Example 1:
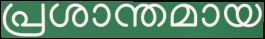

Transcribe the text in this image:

പ്രശാന്തമായ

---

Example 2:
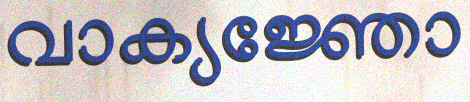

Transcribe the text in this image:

വാക്യജ്ഞോ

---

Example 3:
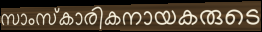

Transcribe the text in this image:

സാംസ്കാരികനായകരുടെ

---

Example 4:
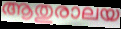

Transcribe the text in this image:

ആതുരാലയ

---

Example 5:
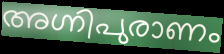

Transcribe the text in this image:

അഗ്നിപുരാണം